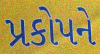
પ્રકોપને